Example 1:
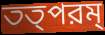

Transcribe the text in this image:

তত্পরম্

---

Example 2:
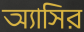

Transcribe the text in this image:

অ্যাসির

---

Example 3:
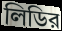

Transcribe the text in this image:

লিডির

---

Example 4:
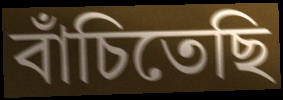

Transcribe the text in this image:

বাঁচিতেছি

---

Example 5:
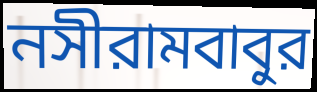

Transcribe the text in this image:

নসীরামবাবুর